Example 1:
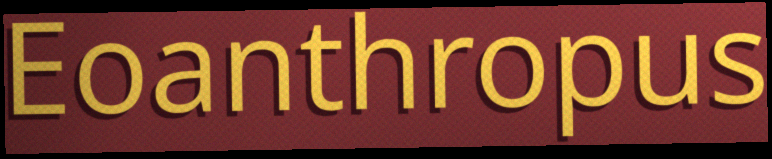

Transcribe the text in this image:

Eoanthropus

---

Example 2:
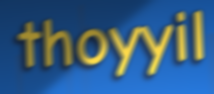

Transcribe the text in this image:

thoyyil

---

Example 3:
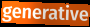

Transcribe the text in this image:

generative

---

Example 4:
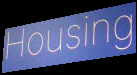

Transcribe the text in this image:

Housing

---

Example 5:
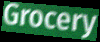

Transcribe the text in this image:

Grocery